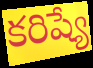
కరిష్యే